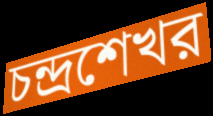
চন্দ্রশেখর